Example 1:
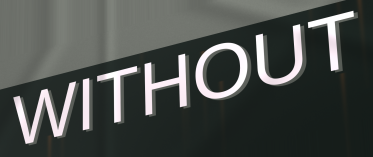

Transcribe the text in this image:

WITHOUT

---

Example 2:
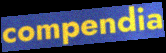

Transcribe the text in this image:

compendia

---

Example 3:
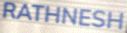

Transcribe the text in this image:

RATHNESH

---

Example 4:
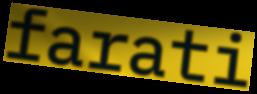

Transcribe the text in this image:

farati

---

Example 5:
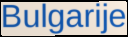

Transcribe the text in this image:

Bulgarije